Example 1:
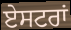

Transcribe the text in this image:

ਏਸਟਰਾਂ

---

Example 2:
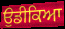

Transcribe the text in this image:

ਉਡੀਕਿਆ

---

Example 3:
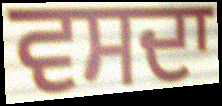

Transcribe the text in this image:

ਵਸਦਾ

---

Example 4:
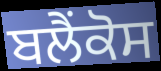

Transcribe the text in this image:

ਬਲੈਂਕੋਸ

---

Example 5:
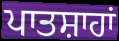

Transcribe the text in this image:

ਪਾਤਸ਼ਾਹਾਂ